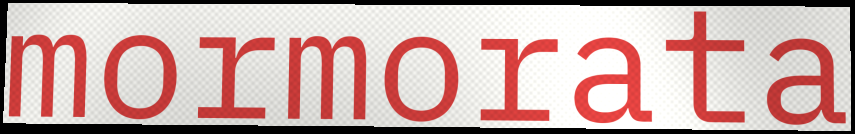
mormorata